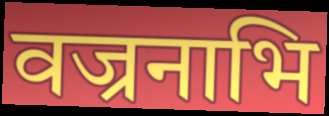
वज्रनाभि